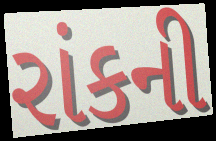
રાંકની